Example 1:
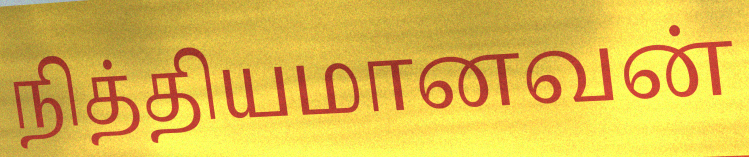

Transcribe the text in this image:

நித்தியமானவன்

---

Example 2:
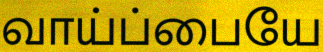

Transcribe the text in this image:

வாய்ப்பையே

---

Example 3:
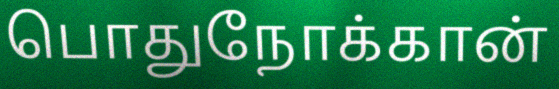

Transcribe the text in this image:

பொதுநோக்கான்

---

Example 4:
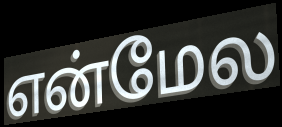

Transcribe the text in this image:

என்மேல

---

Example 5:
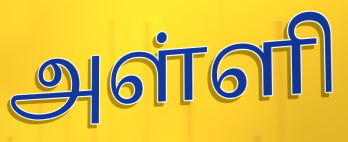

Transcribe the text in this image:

அள்ளி